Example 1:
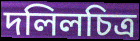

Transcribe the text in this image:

দলিলচিত্র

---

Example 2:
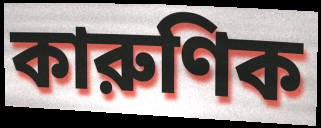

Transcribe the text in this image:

কারুণিক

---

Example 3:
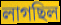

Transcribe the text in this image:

লাগছিল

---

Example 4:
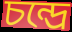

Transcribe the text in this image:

চন্দ্রে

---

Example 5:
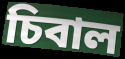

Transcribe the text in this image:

চিবাল